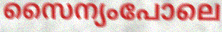
സൈന്യംപോലെ